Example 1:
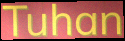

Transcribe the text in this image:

Tuhan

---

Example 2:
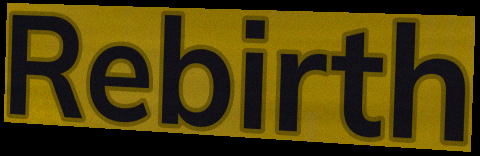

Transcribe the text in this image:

Rebirth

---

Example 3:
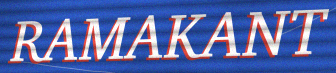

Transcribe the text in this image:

RAMAKANT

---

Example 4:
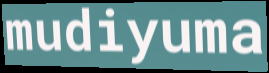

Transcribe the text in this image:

mudiyuma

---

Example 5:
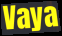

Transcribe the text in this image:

Vaya